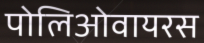
पोलिओवायरस